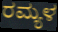
ರಮ್ಯಳ